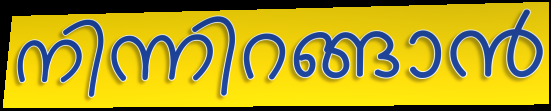
നിന്നിറങ്ങാൻ